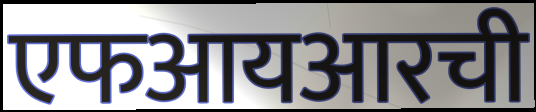
एफआयआरची